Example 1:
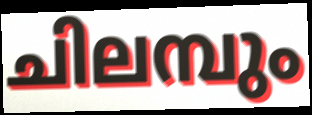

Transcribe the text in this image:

ചിലമ്പും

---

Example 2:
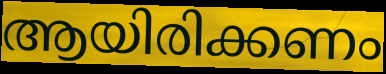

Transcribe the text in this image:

ആയിരിക്കണം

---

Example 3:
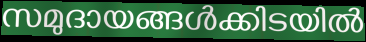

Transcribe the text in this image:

സമുദായങ്ങൾക്കിടയിൽ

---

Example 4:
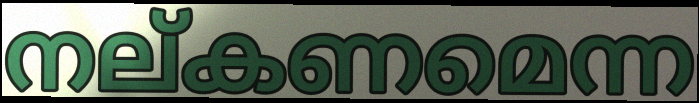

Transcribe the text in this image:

നല്കണമെന്ന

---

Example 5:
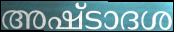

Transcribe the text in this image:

അഷ്ടാദശ